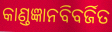
କାଣ୍ଡଜ୍ଞାନବିବର୍ଜିତ